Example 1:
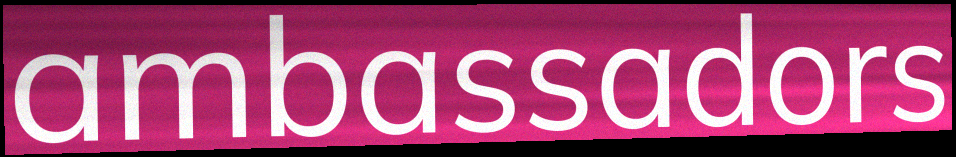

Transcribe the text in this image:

ambassadors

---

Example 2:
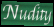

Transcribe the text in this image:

Nudity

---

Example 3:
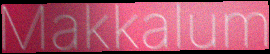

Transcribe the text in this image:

Makkalum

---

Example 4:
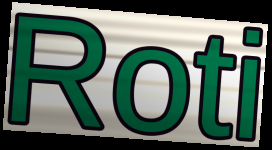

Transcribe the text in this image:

Roti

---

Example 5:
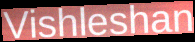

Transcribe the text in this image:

Vishleshan